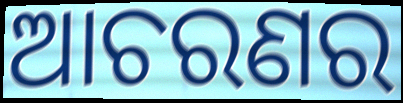
ଆଚରଣର